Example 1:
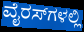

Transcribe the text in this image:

ವೈರಸ್‌ಗಳಲ್ಲಿ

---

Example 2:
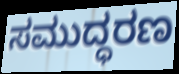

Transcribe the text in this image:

ಸಮುದ್ಧರಣ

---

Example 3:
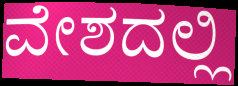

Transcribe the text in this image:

ವೇಶದಲ್ಲಿ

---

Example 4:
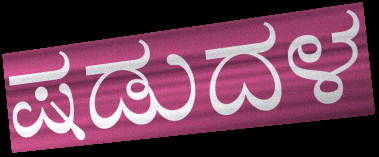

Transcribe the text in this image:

ಷಡುದಳ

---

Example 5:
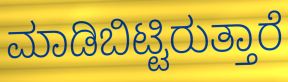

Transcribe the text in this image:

ಮಾಡಿಬಿಟ್ಟಿರುತ್ತಾರೆ